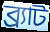
ব্র্যাট